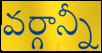
వర్గాన్నీ